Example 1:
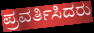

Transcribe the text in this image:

ಪ್ರವರ್ತಿಸಿದರು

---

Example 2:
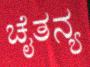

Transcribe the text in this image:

ಚೈತನ್ಯ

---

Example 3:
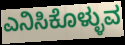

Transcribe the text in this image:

ಎನಿಸಿಕೊಳ್ಳುವ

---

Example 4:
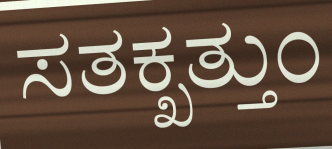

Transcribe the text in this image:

ಸತಕ್ಖತ್ತುಂ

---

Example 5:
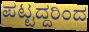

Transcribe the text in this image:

ಪಟ್ಟದ್ದರಿಂದ